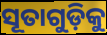
ସୂତାଗୁଡ଼ିକୁ